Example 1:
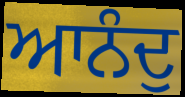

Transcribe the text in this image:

ਆਨੰਦੁ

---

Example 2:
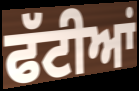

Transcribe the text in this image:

ਫੱਟੀਆਂ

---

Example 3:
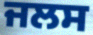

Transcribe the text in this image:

ਜਲਸ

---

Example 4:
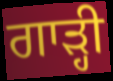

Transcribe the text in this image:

ਗਾੜ੍ਹੀ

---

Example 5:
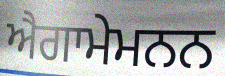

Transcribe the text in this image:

ਐਗਾਮੇਮਨਨ